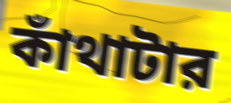
কাঁথাটার